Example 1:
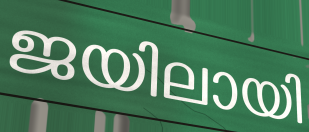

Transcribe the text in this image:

ജയിലായി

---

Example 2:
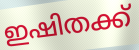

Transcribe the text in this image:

ഇഷിതക്ക്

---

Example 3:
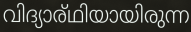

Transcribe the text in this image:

വിദ്യാര്ഥിയായിരുന്ന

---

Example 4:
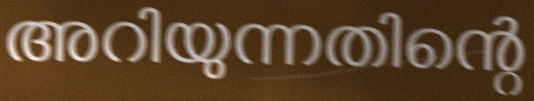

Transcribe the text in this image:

അറിയുന്നതിന്റെ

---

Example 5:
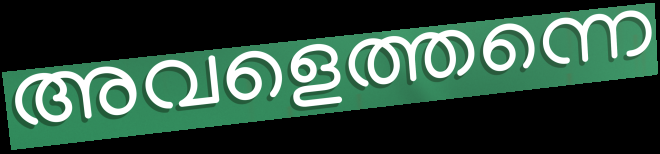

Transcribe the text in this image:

അവളെത്തന്നെ